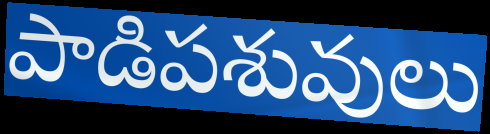
పాడిపశువులు